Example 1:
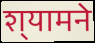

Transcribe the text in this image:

श्यामने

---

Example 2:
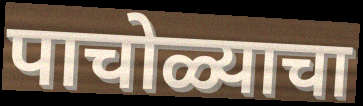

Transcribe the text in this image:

पाचोळ्याचा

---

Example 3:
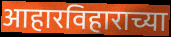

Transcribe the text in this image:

आहारविहाराच्या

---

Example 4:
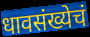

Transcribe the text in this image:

धावसंख्येचं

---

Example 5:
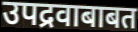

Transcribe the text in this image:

उपद्रवाबाबत